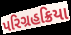
પરિગ્રહક્રિયા